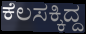
ಕೆಲಸಕ್ಕಿದ್ದ